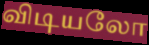
விடியலோ